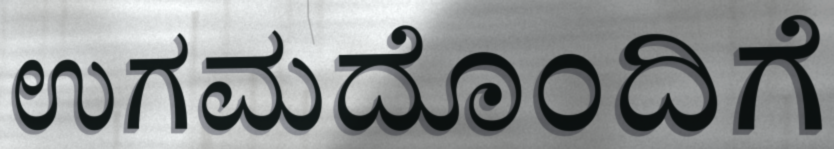
ಉಗಮದೊಂದಿಗೆ